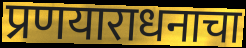
प्रणयाराधनाचा